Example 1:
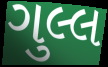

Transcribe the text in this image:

ગુલ્લ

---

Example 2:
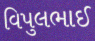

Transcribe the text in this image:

વિપુલભાઈ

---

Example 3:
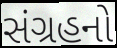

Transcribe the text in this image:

સંગ્રહનો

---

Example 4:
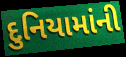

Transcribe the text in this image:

દુનિયામાંની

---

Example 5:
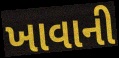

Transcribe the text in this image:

ખાવાની